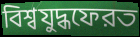
বিশ্বযুদ্ধফেরত